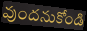
వుందనుకోండి